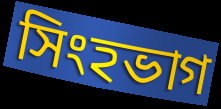
সিংহভাগ